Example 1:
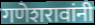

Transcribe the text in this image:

गणेशरावांनी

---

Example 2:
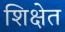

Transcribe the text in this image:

शिक्षेत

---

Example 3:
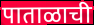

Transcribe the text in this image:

पाताळाची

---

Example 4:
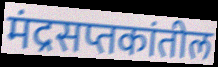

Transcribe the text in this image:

मंद्रसप्तकांतील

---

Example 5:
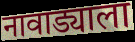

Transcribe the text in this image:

नावाड्याला